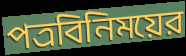
পত্রবিনিময়ের